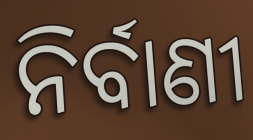
ନିର୍ବାଣୀ